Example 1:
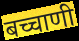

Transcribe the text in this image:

बच्चाणी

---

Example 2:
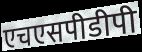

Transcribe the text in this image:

एचएसपीडीपी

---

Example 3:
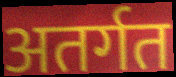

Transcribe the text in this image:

अतर्गत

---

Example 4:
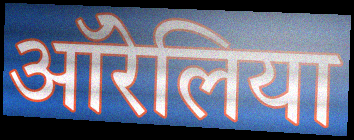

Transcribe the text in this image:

ऑरेलिया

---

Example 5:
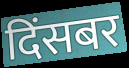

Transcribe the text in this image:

दिंसबर